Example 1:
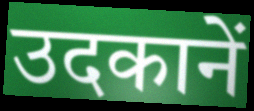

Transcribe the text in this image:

उदकानें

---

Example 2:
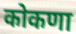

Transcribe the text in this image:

कोकणा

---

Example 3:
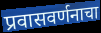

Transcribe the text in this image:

प्रवासवर्णनाचा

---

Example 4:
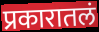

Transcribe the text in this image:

प्रकारातलं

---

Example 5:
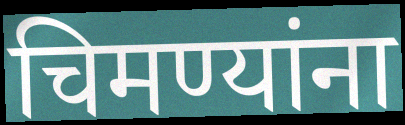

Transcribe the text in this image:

चिमण्यांना